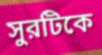
সুরটিকে